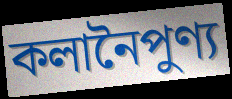
কলানৈপুণ্য